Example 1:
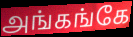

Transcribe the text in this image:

அங்கங்கே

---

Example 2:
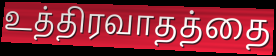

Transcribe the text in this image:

உத்திரவாதத்தை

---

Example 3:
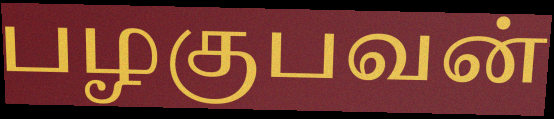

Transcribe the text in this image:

பழகுபவன்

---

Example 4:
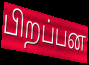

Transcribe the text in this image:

பிறப்பன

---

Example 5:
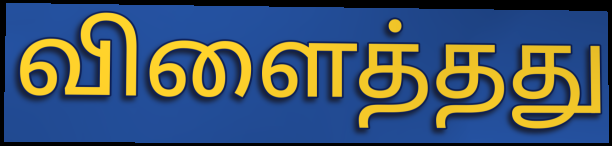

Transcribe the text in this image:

விளைத்தது